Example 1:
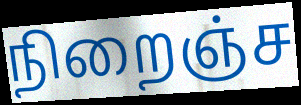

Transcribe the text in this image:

நிறைஞ்ச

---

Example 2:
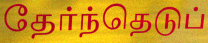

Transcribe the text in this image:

தேர்ந்தெடுப்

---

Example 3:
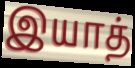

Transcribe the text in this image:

இயாத்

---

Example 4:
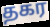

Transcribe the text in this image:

தகர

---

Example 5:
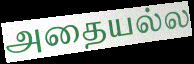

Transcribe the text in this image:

அதையல்ல